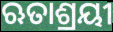
ଋତାଶ୍ରୟୀ